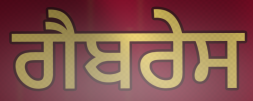
ਗੈਬਰੇਸ